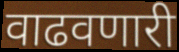
वाढवणारी